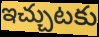
ఇచ్చుటకు